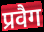
प्रवैग